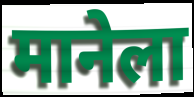
मानेला